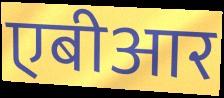
एबीआर